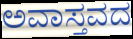
ಅವಾಸ್ತವದ